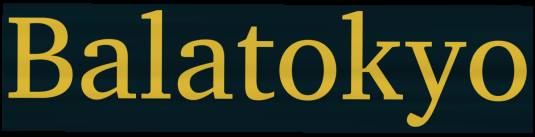
Balatokyo